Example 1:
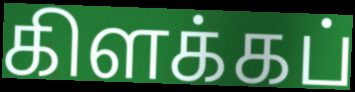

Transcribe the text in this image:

கிளக்கப்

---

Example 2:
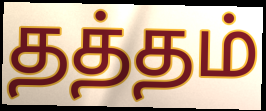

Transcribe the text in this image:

தத்தம்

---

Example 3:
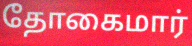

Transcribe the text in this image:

தோகைமார்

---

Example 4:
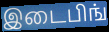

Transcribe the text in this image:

இடைபிங்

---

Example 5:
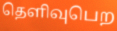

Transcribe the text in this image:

தெளிவுபெற